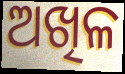
ଅଖିଳ